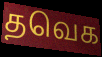
தவெக